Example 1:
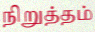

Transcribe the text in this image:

நிறுத்தம்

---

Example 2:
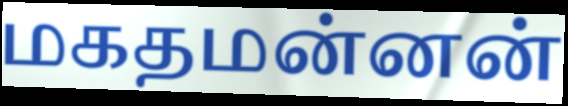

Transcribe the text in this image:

மகதமன்னன்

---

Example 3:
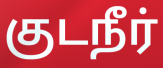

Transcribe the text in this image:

குடநீர்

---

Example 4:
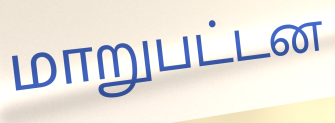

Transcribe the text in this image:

மாறுபட்டன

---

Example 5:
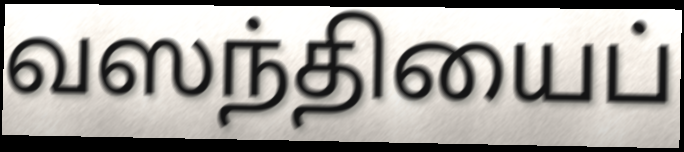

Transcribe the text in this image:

வஸந்தியைப்